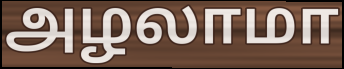
அழலாமா